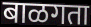
बाळगता